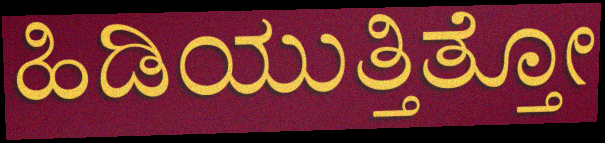
ಹಿಡಿಯುತ್ತಿತ್ತೋ